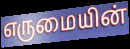
எருமையின்